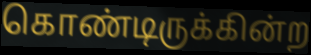
கொண்டிருக்கின்ற